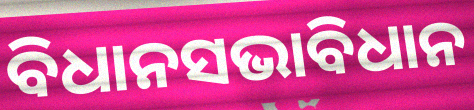
ବିଧାନସଭାବିଧାନ